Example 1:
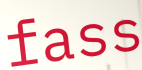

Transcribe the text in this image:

fass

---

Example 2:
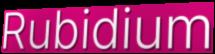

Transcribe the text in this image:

Rubidium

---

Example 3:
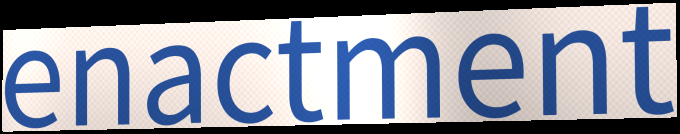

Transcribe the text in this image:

enactment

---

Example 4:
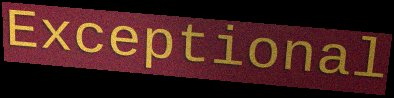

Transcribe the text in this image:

Exceptional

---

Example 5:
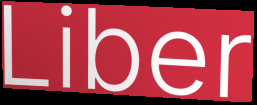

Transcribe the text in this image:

Liber